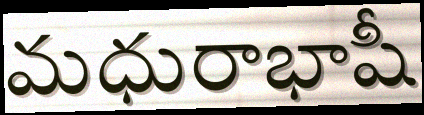
మధురాభాషీ